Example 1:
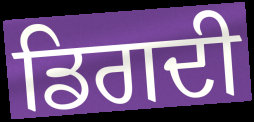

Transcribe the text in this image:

ਡਿਗਦੀ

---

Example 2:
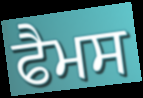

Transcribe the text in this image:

ਫੈਮਸ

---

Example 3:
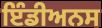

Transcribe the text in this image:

ਇੰਡੀਅਨਸ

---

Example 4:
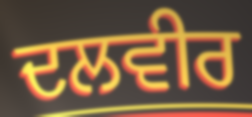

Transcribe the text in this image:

ਦਲਵੀਰ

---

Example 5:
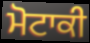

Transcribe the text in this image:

ਮੋਟਾਕੀ